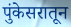
पुंकेसरातून